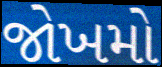
જોખમો